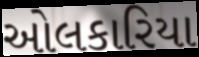
ઓલકારિયા